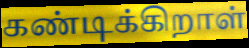
கண்டிக்கிறாள்